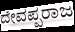
ದೇವಪ್ಪರಾಜ